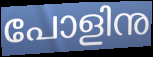
പോളിനു